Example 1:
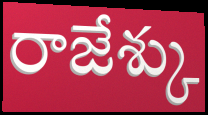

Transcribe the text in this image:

రాజేశ్కు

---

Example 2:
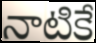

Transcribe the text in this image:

నాటికే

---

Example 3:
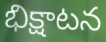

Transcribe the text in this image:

భిక్షాటన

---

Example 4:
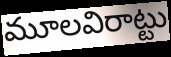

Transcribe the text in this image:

మూలవిరాట్టు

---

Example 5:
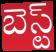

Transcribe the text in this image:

బెస్ట్